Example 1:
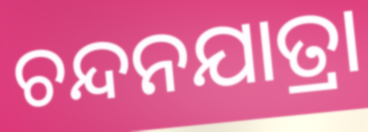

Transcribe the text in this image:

ଚନ୍ଦନଯାତ୍ରା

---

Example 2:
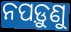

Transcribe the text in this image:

ନପଡ଼ୁଣୁ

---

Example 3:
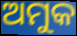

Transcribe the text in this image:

ଅମୁକ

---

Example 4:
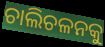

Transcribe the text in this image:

ଚାଲିଚଳନକୁ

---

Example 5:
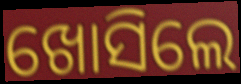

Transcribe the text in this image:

ଖୋସିଲେ